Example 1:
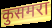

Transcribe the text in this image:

कुसमरा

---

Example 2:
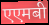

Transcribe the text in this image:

एएमबी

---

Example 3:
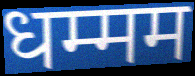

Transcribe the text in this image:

धम्मम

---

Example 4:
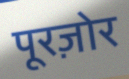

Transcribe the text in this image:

पूरज़ोर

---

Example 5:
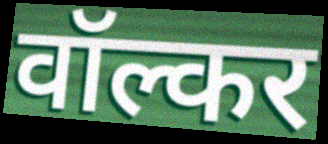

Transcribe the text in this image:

वॉल्कर